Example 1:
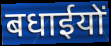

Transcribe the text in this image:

बधाईयों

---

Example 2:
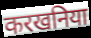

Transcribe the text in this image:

करखनिया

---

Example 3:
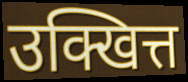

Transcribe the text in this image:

उक्खित्त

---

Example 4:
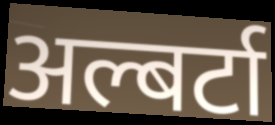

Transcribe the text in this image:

अल्बर्टा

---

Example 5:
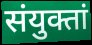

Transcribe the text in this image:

संयुक्तां